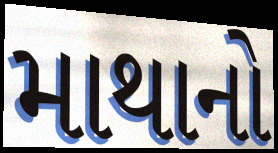
માથાનો